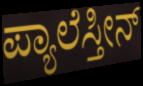
ಪ್ಯಾಲೆಸ್ತೀನ್